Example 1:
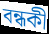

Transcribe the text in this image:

বন্ধকী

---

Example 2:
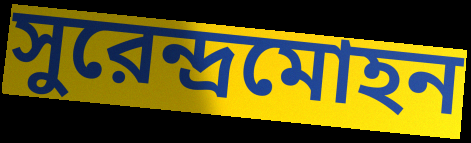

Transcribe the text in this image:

সুরেন্দ্রমোহন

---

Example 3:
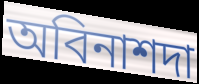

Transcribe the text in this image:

অবিনাশদা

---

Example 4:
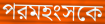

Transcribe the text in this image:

পরমহংসকে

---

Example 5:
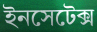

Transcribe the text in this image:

ইনসেটেক্স